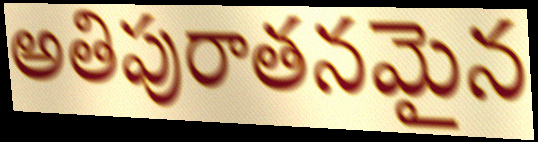
అతిపురాతనమైన